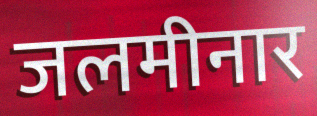
जलमीनार